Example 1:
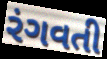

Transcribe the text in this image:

રંગવતી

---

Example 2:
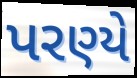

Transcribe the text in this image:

પરણ્યે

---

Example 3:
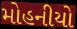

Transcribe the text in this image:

મોહનીયો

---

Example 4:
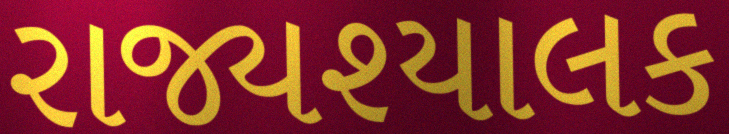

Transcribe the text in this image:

રાજ્યશ્યાલક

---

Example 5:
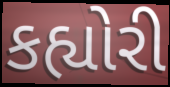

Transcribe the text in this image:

કહ્યોરી